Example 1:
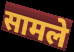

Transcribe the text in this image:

सामले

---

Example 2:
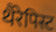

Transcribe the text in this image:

थैरेपिस्ट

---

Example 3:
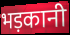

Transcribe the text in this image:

भड़कानी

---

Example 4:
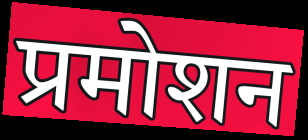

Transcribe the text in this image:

प्रमोशन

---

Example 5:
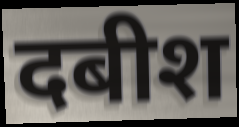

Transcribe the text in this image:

दबीश